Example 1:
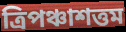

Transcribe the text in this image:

ত্রিপঞ্চাশত্তম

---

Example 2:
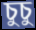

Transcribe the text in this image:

চুচু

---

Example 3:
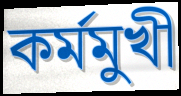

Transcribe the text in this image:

কর্মমুখী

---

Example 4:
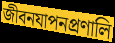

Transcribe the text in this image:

জীবনযাপনপ্রণালি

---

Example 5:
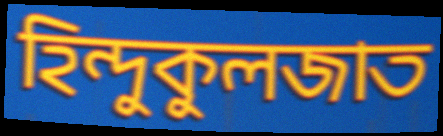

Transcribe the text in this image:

হিন্দুকুলজাত